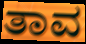
ತಾವ